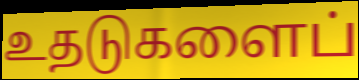
உதடுகளைப்